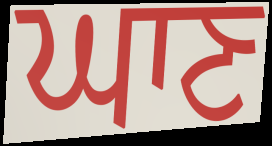
ਘਾਣ